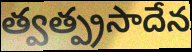
త్వత్ప్రసాదేన